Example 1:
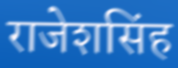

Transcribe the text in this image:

राजेशसिंह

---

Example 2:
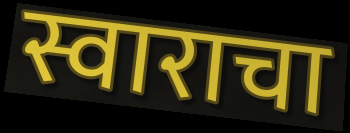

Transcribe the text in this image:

स्वाराचा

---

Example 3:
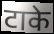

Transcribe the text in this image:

टाके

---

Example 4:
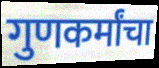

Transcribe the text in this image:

गुणकर्मांचा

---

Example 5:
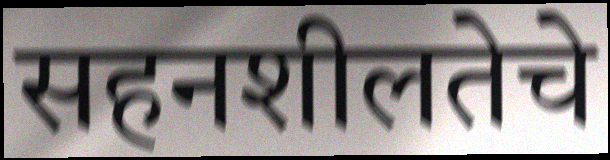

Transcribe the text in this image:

सहनशीलतेचे